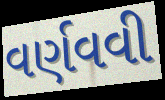
વર્ણવવી